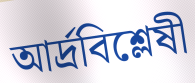
আর্দ্রবিশ্লেষী